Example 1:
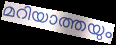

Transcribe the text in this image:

മറിയാത്തയും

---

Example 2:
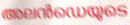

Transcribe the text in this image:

അലൻഡെയുടെ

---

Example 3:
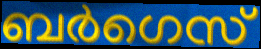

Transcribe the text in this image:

ബർഗെസ്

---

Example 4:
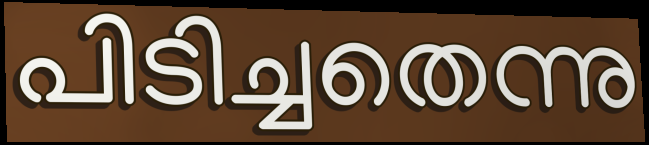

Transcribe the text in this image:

പിടിച്ചതെന്നു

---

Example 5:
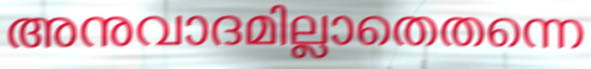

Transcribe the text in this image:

അനുവാദമില്ലാതെതന്നെ